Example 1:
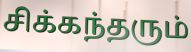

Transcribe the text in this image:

சிக்கந்தரும்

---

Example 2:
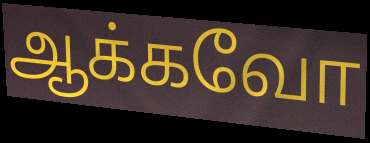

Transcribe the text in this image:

ஆக்கவோ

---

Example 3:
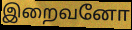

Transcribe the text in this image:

இறைவனோ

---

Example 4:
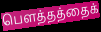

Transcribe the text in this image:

பௌத்தத்தைக்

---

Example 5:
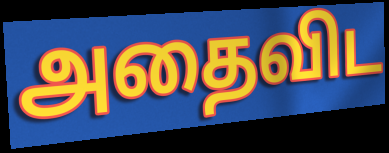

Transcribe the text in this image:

அதைவிட